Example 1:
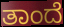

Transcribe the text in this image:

ತಾಂದೆ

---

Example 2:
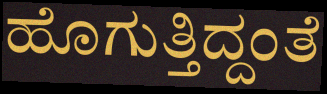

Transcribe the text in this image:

ಹೊಗುತ್ತಿದ್ದಂತೆ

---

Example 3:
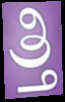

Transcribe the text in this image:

ತ್ತಿ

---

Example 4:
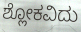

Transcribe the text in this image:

ಶ್ಲೋಕವಿದು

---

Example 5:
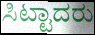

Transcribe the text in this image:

ಸಿಟ್ಟಾದರು